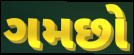
ગમછો